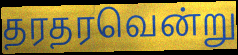
தரதரவென்று